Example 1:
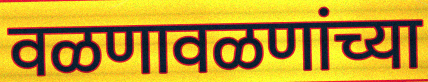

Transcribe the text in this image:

वळणावळणांच्या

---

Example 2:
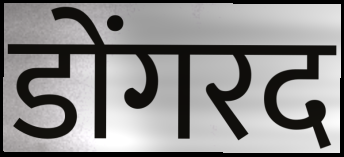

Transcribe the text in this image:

डोंगरद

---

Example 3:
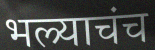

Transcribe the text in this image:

भल्याचंच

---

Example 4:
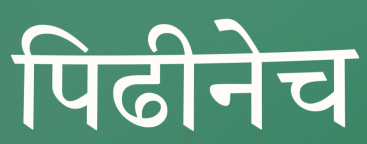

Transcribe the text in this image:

पिढीनेच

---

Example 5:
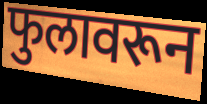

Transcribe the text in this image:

फुलावरून